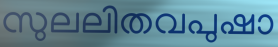
സുലലിതവപുഷാ